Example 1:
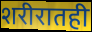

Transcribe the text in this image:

शरीरातही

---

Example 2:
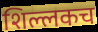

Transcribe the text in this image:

शिल्लकच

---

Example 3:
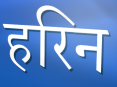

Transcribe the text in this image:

हरिन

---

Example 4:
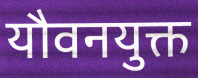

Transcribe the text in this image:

यौवनयुक्त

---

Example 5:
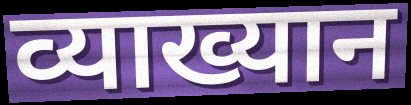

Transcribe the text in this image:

व्याख्यान